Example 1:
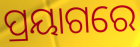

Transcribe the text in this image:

ପ୍ରୟାଗରେ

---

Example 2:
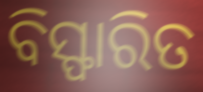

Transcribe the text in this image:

ବିସ୍ଫାରିତ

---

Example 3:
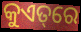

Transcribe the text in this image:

କୁଏତ୍‌ରେ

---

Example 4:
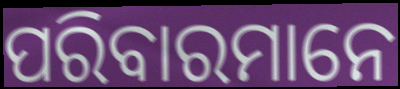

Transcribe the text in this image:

ପରିବାରମାନେ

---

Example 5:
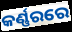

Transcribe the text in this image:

କର୍ଣ୍ଣରରେ